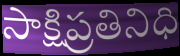
సాక్షిప్రతినిధి